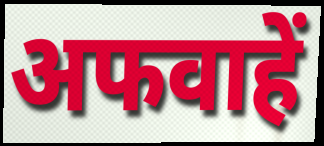
अफवाहें